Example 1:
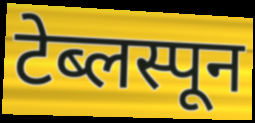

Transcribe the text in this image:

टेब्लस्पून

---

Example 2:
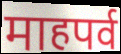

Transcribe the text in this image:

माहपर्व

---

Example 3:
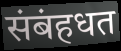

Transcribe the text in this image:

संबंहधत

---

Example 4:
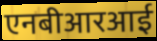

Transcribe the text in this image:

एनबीआरआई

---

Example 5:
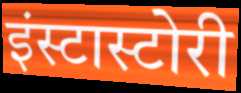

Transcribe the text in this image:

इंस्टास्टोरी